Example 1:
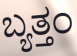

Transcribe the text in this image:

ಬ್ಯತ್ತಂ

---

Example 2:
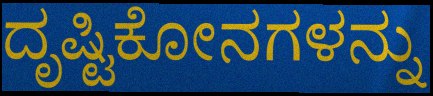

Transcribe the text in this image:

ದೃಷ್ಟಿಕೋನಗಳನ್ನು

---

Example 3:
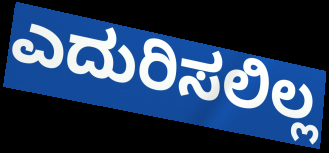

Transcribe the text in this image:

ಎದುರಿಸಲಿಲ್ಲ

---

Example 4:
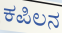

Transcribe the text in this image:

ಕಪಿಲನ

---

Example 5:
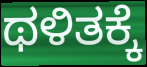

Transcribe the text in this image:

ಥಳಿತಕ್ಕೆ